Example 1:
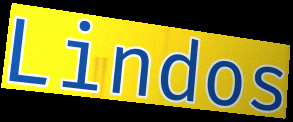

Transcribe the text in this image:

Lindos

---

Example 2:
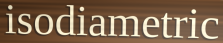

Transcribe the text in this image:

isodiametric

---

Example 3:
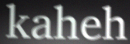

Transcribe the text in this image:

kaheh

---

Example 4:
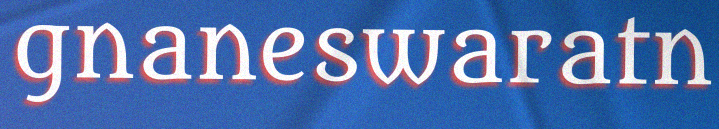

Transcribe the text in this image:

gnaneswaratn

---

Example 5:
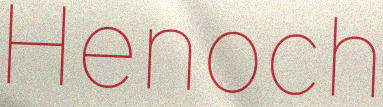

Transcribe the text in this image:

Henoch